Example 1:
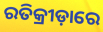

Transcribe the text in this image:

ରତିକ୍ରୀଡ଼ାରେ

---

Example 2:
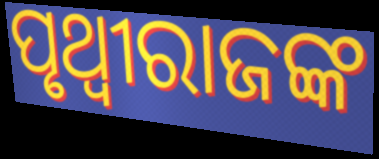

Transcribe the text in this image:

ପୃଥ୍ଵୀରାଜଙ୍କ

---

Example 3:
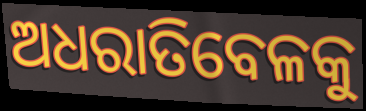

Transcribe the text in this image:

ଅଧରାତିବେଳକୁ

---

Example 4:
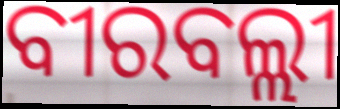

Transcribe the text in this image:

ବୀରବଲ୍ଲୀ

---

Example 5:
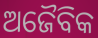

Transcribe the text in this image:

ଅଜୈବିକ